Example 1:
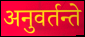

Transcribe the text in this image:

अनुवर्तन्ते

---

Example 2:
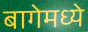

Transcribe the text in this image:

बागेमध्ये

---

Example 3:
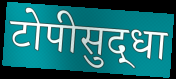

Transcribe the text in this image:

टोपीसुद्धा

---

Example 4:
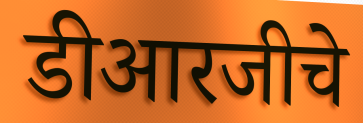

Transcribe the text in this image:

डीआरजीचे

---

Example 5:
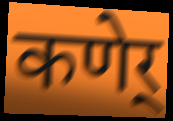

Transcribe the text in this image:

कणेर्